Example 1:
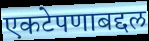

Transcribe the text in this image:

एकटेपणाबद्दल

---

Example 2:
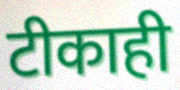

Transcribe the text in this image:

टीकाही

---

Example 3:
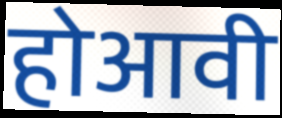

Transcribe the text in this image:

होआवी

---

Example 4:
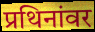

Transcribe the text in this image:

प्रथिनांवर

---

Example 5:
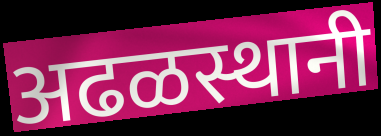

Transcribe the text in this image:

अढळस्थानी